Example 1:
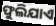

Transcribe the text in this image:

ଫୁଲିଯାଏ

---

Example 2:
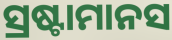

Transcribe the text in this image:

ସ୍ରଷ୍ଟାମାନସ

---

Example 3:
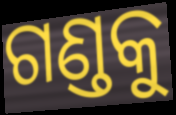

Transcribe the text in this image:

ଗଣ୍ଡକୁ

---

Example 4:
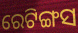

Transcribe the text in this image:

ରେଟିଙ୍ଗସ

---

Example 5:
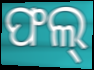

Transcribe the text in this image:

ଫଲ୍